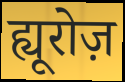
ह्यूरोज़